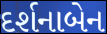
દર્શનાબેન